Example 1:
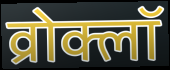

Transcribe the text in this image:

व्रोक्लॉ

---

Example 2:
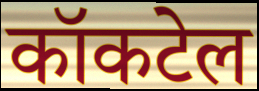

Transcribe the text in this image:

कॉकटेल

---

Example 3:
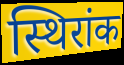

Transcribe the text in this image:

स्थिरांक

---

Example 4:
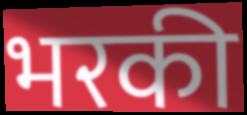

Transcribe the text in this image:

भरकी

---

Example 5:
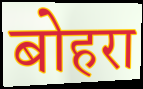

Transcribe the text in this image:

बोहरा